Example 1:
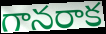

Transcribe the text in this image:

గానరాక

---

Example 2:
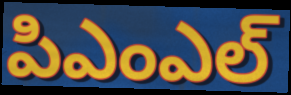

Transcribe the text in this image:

పిఎంఎల్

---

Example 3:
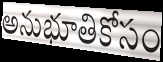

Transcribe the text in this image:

అనుభూతికోసం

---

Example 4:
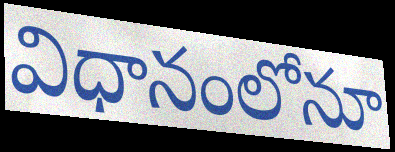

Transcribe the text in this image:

విధానంలోనూ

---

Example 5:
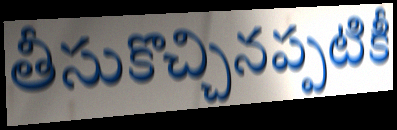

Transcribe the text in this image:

తీసుకొచ్చినప్పటికీ